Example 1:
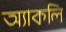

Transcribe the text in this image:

অ্যাকলি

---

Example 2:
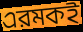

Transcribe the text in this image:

এরমকই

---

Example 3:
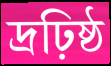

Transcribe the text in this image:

দ্রঢ়িষ্ঠ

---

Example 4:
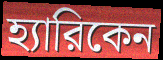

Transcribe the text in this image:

হ্যারিকেন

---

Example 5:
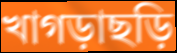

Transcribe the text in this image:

খাগড়াছড়ি